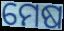
ମେଷ